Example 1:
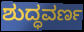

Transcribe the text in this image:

ಶುದ್ಧವರ್ಣ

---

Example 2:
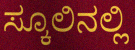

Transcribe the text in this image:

ಸ್ಕೂಲಿನಲ್ಲಿ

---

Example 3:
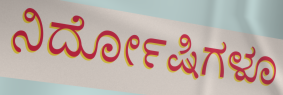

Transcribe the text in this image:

ನಿರ್ದೋಷಿಗಳೂ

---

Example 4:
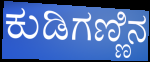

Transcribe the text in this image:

ಕುಡಿಗಣ್ಣಿನ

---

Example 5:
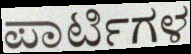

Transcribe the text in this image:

ಪಾರ್ಟಿಗಳ